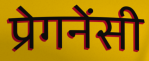
प्रेगनेंसी